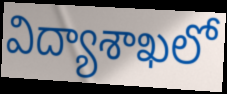
విద్యాశాఖలో